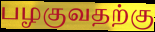
பழகுவதற்கு